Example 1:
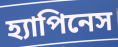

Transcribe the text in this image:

হ্যাপিনেস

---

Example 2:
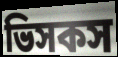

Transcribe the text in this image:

ভিসকস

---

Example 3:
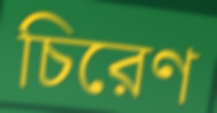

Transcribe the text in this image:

চিরেণ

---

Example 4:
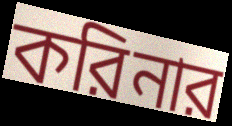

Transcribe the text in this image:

করিনার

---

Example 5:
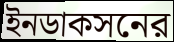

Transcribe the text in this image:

ইনডাকসনের